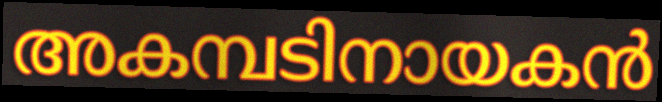
അകമ്പടിനായകൻ